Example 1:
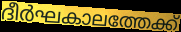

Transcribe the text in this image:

ദീർഘകാലത്തേക്ക്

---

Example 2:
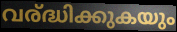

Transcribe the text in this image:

വര്ദ്ധിക്കുകയും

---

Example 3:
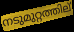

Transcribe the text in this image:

നടുമുറ്റത്തില്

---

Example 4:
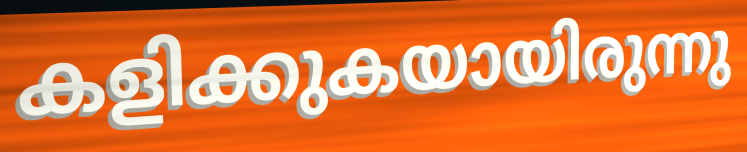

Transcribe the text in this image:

കളിക്കുകയായിരുന്നു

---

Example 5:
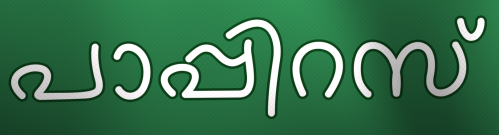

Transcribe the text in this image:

പാപ്പിറസ്